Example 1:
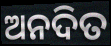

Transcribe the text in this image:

ଅନଦିତ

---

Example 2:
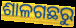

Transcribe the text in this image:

ଶାଳଗଛରୁ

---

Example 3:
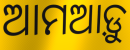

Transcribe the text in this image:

ଆମଆଡ଼ୁ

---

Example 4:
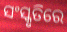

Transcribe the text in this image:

ସଂସ୍କୃତିରେ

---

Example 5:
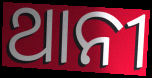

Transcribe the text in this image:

ଥାନୀ